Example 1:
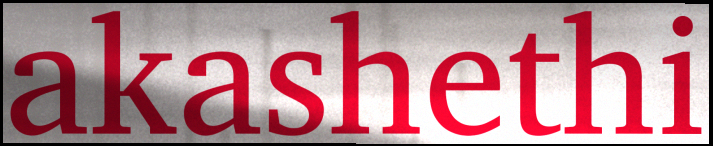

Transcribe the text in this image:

akashethi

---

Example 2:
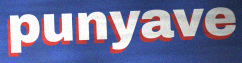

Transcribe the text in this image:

punyave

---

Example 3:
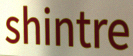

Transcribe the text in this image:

shintre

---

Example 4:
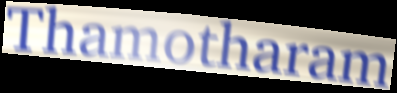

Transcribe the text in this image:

Thamotharam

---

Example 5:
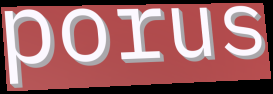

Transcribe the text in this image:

porus